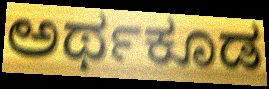
ಅರ್ಥಕೂಡ